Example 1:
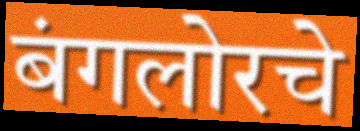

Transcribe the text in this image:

बंगलोरचे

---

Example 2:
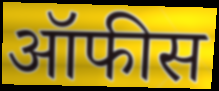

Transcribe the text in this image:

ऑफीस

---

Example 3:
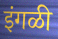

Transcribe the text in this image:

इंगळी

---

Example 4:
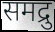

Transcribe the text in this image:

समद्रु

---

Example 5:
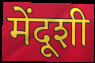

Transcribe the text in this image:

मेंदूशी